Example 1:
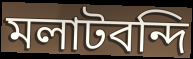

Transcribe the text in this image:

মলাটবন্দি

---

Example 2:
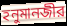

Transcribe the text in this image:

হনুমানজীর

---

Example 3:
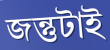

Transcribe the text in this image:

জন্তুটাই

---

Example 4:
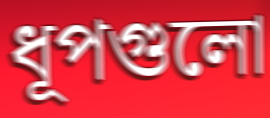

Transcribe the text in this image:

ধূপগুলো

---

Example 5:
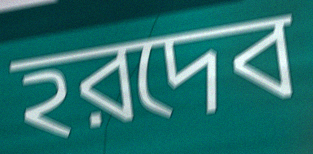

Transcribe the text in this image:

হরদেব